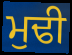
ਮੁਢੀ